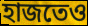
হাজতেও